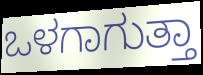
ಒಳಗಾಗುತ್ತಾ